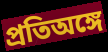
প্রতিঅঙ্গে